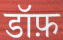
डॉफ़